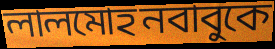
লালমোহনবাবুকে